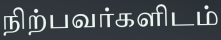
நிற்பவர்களிடம்